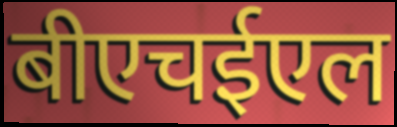
बीएचईएल